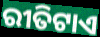
ରୀତିଟାଏ